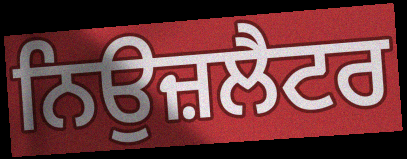
ਨਿਉਜ਼ਲੈਟਰ